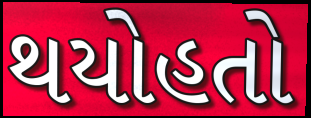
થયોહતો